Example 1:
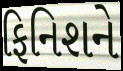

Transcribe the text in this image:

ફિનિશને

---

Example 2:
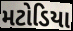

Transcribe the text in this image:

મટોડિયા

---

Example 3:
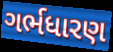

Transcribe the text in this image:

ગર્ભધારણ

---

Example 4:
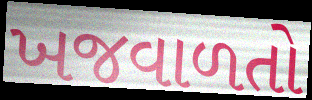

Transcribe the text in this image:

ખજવાળતો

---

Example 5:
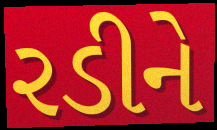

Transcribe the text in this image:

રડીને